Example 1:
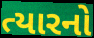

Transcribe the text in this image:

ત્યારનો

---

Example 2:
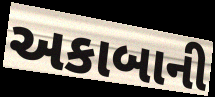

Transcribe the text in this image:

અકાબાની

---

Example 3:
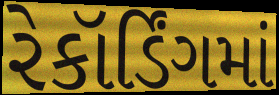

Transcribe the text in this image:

રેકૉર્ડિંગમાં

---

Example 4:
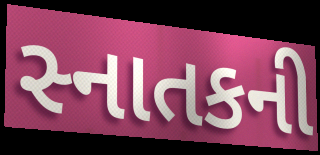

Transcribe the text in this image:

સ્નાતકની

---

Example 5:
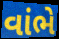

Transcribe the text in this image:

વાંભે